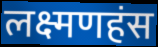
लक्ष्मणहंस